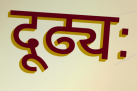
दूढ्यः